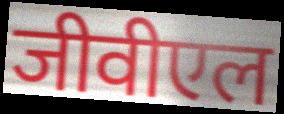
जीवीएल